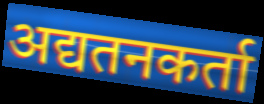
अद्यतनकर्ता